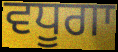
ਵਧੂਗਾ